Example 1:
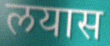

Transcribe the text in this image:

लयास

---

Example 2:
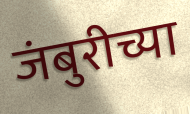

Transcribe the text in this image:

जंबुरीच्या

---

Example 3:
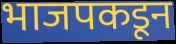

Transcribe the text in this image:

भाजपकडून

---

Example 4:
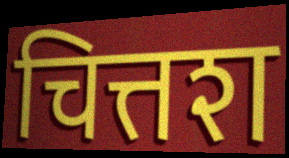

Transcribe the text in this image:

चित्तश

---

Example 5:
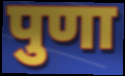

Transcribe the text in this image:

पुणा